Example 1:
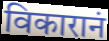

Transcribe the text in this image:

विकारानं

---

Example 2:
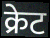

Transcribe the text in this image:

क्रेट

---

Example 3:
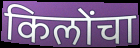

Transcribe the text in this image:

किलोंचा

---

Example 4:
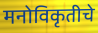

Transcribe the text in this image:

मनोविकृतीचे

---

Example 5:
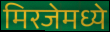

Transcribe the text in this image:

मिरजेमध्ये